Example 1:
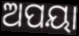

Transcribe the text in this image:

ଅପୟା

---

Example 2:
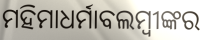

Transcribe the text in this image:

ମହିମାଧର୍ମାବଲମ୍ବୀଙ୍କର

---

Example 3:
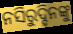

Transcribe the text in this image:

ନସିରୁଦ୍ଦିନଙ୍କୁ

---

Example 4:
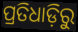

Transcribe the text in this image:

ପ୍ରତିଧାଡ଼ିରୁ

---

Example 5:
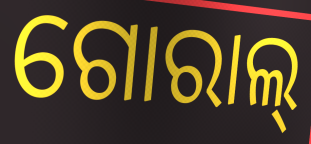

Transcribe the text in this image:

ଗୋରାଲ୍